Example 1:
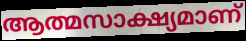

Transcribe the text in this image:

ആത്മസാക്ഷ്യമാണ്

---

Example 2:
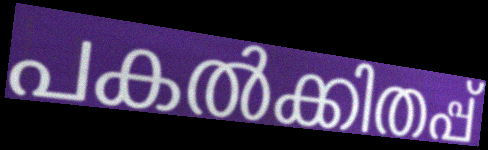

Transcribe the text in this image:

പകൽക്കിതപ്പ്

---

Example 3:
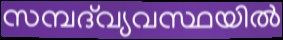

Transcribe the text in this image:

സമ്പദ്‌വ്യവസ്ഥയിൽ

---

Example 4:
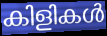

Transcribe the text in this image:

കിളികൾ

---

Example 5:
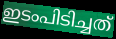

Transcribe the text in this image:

ഇടംപിടിച്ചത്